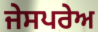
ਜੇਸਪਰੇਅ